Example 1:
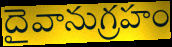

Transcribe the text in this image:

దైవానుగ్రహం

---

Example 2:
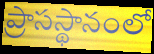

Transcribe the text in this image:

ప్రాసస్థానంలో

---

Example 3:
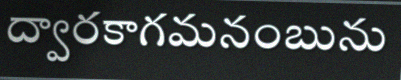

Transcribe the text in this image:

ద్వారకాగమనంబును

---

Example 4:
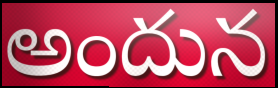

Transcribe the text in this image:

అందున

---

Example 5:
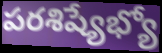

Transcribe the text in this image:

పరశిష్యేభ్యో